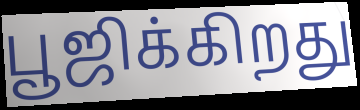
பூஜிக்கிறது